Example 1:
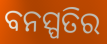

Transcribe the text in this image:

ବନସ୍ପତିର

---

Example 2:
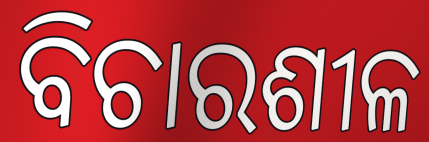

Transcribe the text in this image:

ବିଚାରଶୀଳ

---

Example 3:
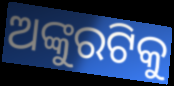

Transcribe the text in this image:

ଅଙ୍କୁରଟିକୁ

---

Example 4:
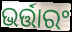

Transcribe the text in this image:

ଭର୍ତ୍ତାରଂ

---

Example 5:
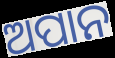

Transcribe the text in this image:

ଅପାନ